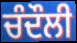
ਚੰਦੌਲੀ